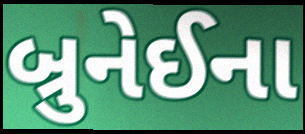
બ્રુનેઈના